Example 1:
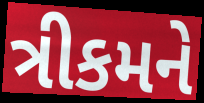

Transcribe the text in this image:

ત્રીકમને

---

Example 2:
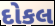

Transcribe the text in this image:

દોકલ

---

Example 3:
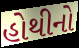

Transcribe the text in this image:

હોથીનો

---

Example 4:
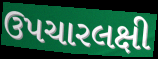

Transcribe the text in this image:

ઉપચારલક્ષી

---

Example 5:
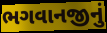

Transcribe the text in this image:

ભગવાનજીનું